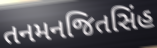
તનમનજિતસિંહ